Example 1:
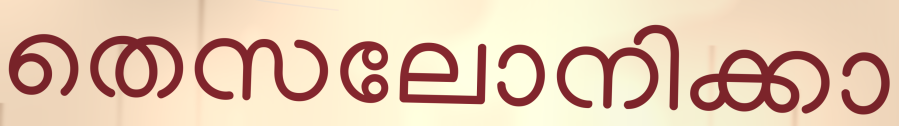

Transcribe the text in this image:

തെസലോനിക്കാ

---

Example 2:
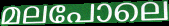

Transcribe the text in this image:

മലപോലെ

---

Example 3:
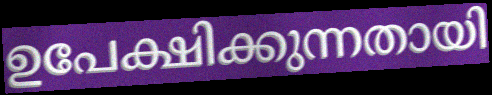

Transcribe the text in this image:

ഉപേക്ഷിക്കുന്നതായി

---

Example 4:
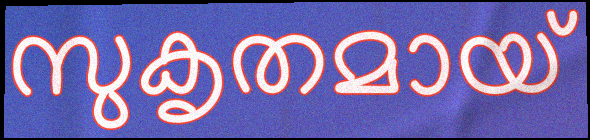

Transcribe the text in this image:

സുകൃതമായ്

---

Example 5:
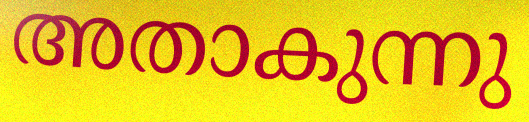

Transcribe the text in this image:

അതാകുന്നു